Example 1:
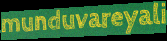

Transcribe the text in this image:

munduvareyali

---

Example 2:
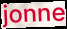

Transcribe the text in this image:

jonne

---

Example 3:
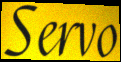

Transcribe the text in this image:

Servo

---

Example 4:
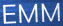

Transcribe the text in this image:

EMM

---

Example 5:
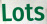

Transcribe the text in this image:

Lots